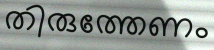
തിരുത്തേണം